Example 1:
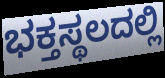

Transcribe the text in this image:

ಭಕ್ತಸ್ಥಲದಲ್ಲಿ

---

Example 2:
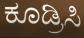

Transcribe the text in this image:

ಕೂಡ್ರಿಸಿ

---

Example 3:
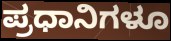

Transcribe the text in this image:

ಪ್ರಧಾನಿಗಳೂ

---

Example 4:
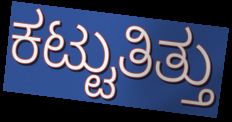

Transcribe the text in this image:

ಕಟ್ಟುತಿತ್ತು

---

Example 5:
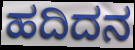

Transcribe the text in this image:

ಹದಿದನ